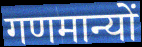
गणमान्यों